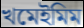
খমেইমিম